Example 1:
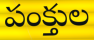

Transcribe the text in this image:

పంక్తుల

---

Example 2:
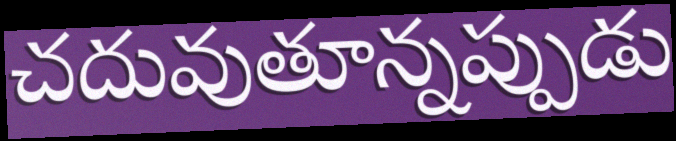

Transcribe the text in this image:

చదువుతూన్నప్పుడు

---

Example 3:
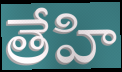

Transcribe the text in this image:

తేహి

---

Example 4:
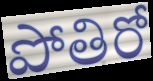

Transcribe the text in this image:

పోతిరో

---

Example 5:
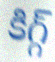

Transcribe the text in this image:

కిగ్గ్